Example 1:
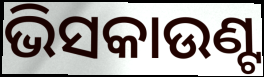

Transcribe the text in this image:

ଭିସକାଉଣ୍ଟ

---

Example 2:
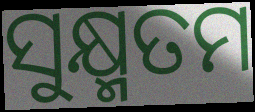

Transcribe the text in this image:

ସୁକ୍ଷ୍ମତମ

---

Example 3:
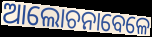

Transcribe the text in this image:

ଆଲୋଚନାବେଳେ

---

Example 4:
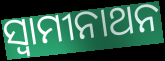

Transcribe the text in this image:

ସ୍ୱାମୀନାଥନ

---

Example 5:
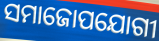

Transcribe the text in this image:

ସମାଜୋପଯୋଗୀ